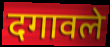
दगावले